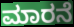
ಮಾರನೆ